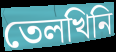
তেলখিনি